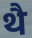
थै